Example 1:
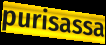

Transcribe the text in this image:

purisassa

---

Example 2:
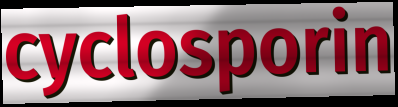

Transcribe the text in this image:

cyclosporin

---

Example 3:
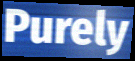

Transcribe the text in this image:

Purely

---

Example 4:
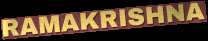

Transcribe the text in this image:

RAMAKRISHNA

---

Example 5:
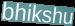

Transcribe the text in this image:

bhikshu